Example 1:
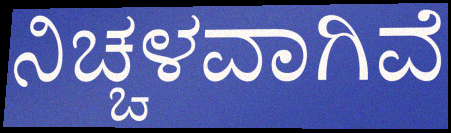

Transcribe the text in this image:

ನಿಚ್ಚಳವಾಗಿವೆ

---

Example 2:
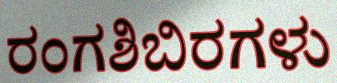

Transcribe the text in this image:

ರಂಗಶಿಬಿರಗಳು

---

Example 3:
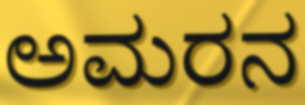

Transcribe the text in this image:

ಅಮರನ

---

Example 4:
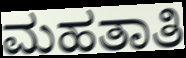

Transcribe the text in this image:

ಮಹತಾತಿ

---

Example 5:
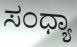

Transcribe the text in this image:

ಸಂಧ್ಯಾ